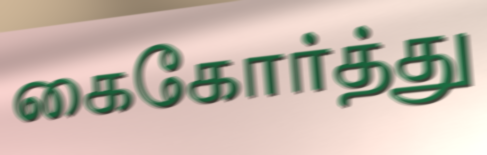
கைகோர்த்து